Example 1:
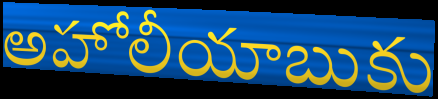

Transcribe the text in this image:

అహోలీయాబుకు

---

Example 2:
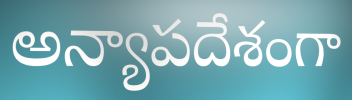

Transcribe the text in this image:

అన్యాపదేశంగా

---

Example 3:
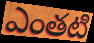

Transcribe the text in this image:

ఎంతటి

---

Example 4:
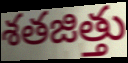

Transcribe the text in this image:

శతజిత్తు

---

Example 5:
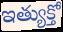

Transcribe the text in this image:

ఇత్యుక్తో